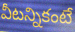
వీటన్నికంటే